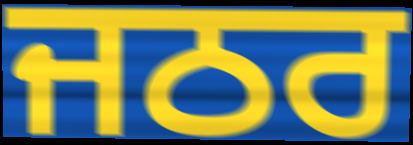
ਜਠਰ